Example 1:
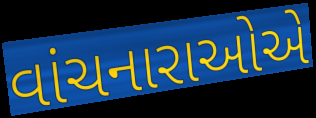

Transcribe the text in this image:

વાંચનારાઓએ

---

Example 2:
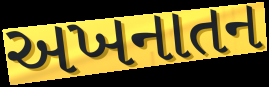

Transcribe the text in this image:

અખનાતન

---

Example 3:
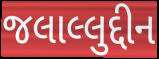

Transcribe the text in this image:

જલાલ્લુદ્દીન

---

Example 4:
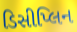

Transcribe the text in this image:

ડિસીપ્લિન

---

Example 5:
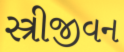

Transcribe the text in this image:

સ્ત્રીજીવન